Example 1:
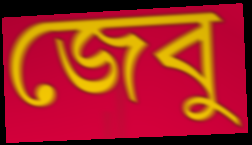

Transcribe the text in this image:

জেবু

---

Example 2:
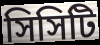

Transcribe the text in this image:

সিসিটি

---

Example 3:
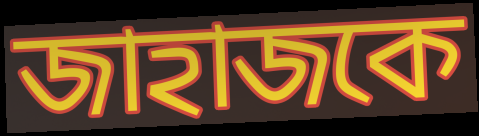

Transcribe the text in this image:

জাহাজকে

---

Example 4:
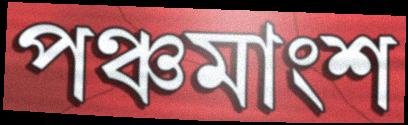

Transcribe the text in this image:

পঞ্চমাংশ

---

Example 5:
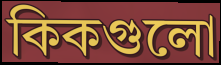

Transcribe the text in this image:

কিকগুলো